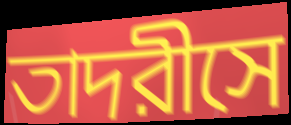
তাদরীসে